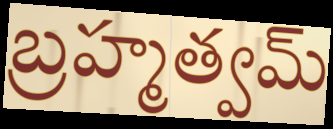
బ్రహ్మత్వమ్